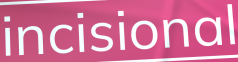
incisional